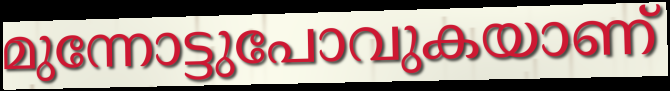
മുന്നോട്ടുപോവുകയാണ്